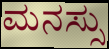
ಮನಸ್ಸು